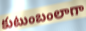
కుటుంబంలాగా